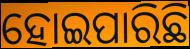
ହୋଇପାରିଛି